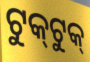
ଟୁକ୍‌ଟୁକ୍